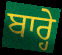
ਬਾਰ੍ਹੇ